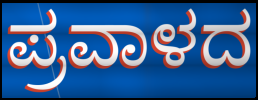
ಪ್ರವಾಳದ